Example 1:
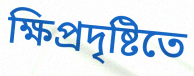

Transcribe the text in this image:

ক্ষিপ্রদৃষ্টিতে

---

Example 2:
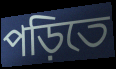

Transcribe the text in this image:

পড়িতে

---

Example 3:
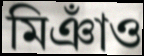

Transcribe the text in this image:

মিঞাঁও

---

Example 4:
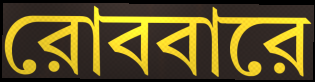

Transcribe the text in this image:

রোববারে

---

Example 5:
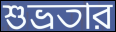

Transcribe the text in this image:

শুভ্রতার